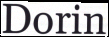
Dorin